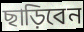
ছাড়িবেন